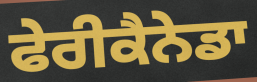
ਫੇਰੀਕੈਨੇਡਾ